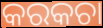
କରକଚା